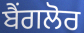
ਬੈਂਗਲੋਰ